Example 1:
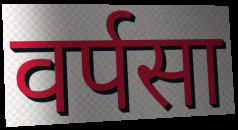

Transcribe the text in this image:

वर्पसा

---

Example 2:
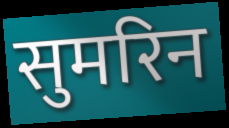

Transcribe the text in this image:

सुमरिन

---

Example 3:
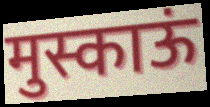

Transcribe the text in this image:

मुस्काऊं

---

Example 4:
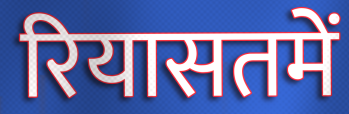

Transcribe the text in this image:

रियासतमें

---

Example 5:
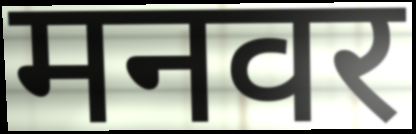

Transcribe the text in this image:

मनवर